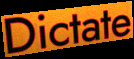
Dictate